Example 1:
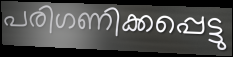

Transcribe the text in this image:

പരിഗണിക്കപ്പെട്ടു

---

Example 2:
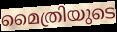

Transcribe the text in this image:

മൈത്രിയുടെ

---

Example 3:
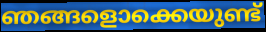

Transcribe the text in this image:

ഞങ്ങളൊക്കെയുണ്ട്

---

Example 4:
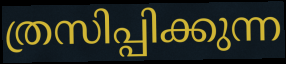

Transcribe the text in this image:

ത്രസിപ്പിക്കുന്ന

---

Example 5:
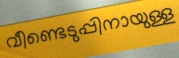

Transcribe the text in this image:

വീണ്ടെടുപ്പിനായുള്ള